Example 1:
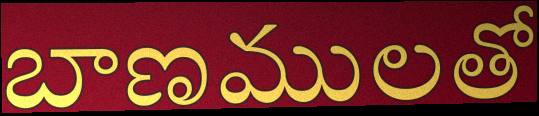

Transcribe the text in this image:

బాణములతో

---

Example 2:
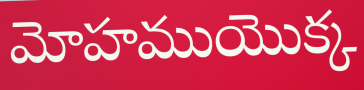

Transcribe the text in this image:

మోహముయొక్క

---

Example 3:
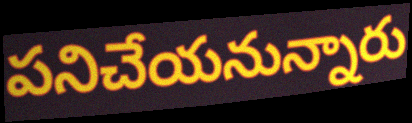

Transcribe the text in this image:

పనిచేయనున్నారు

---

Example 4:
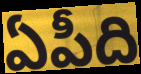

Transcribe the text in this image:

ఏపీది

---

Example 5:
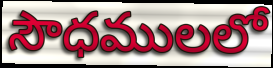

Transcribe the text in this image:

సౌధములలో